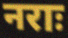
नराः